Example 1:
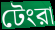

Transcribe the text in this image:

টেংরা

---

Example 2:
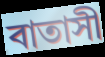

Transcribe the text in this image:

বাতাসী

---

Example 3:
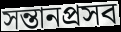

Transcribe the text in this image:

সন্তানপ্রসব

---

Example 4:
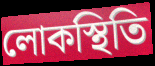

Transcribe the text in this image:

লোকস্থিতি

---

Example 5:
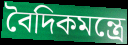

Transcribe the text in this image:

বৈদিকমন্ত্রে